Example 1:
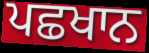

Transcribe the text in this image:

ਪਛਖਾਨ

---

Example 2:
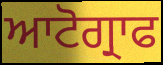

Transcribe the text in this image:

ਆਟੋਗ੍ਰਾਫ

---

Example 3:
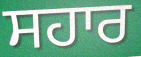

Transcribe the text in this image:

ਸਹਾਰ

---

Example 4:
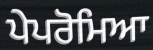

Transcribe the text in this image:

ਪੇਪਰੋਮਿਆ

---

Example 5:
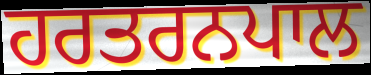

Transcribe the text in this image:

ਹਰਤਰਨਪਾਲ